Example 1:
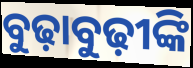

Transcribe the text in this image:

ବୁଢ଼ାବୁଢ଼ୀଙ୍କି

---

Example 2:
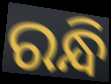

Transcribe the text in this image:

ରନ୍ଧି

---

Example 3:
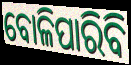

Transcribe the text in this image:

ବୋଳିପାରିବି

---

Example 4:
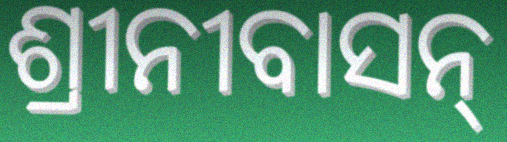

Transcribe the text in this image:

ଶ୍ରୀନୀବାସନ୍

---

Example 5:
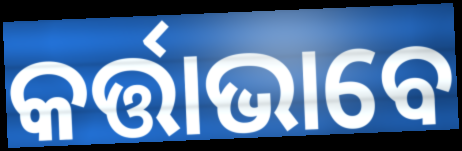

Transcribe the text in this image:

କର୍ତ୍ତାଭାବେ